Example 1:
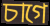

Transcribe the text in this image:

চাগে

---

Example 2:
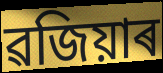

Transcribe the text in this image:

ৱজিয়াৰ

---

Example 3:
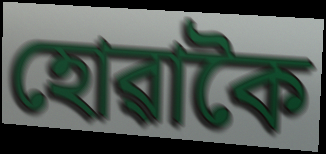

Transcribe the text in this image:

হোৱাকৈ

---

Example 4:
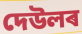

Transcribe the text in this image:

দেউলৰ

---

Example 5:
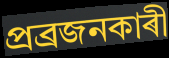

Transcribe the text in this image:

প্ৰব্ৰজনকাৰী